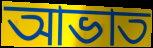
আভাত